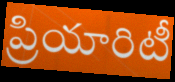
ప్రియారిటీ